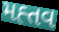
મહ્તવ